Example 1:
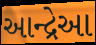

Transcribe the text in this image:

આન્દ્રેઆ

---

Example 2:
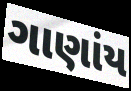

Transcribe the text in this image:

ગાણાંય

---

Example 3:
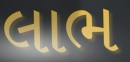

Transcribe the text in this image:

લાભ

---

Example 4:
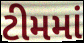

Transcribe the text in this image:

ટીમમાં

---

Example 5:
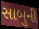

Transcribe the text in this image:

સાબુની